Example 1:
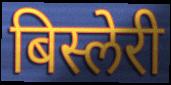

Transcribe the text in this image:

बिस्लेरी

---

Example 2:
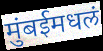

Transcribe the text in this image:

मुंबईमधलं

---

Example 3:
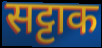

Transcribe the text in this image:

सट्टाक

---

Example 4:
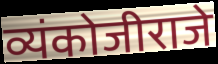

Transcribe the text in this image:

व्यंकोजीराजे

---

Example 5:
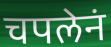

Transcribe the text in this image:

चपलेनं